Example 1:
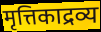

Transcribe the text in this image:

मृत्तिकाद्रव्य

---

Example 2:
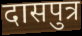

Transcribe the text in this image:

दासपुत्र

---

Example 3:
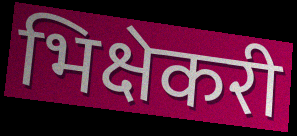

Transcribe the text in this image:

भिक्षेकरी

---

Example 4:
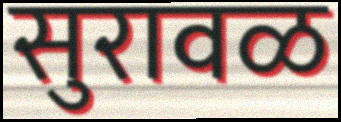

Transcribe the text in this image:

सुरावळ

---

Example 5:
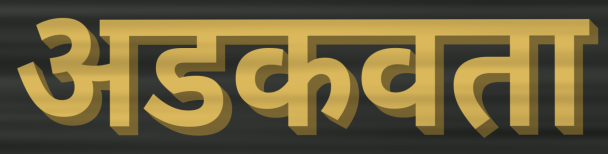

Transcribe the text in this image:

अडकवता